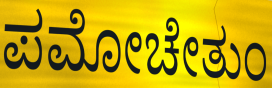
ಪಮೋಚೇತುಂ